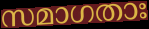
സമാഗതാഃ